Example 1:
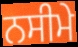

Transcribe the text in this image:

ਨਸੀਮੇ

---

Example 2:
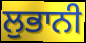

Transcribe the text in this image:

ਲੁਭਾਨੀ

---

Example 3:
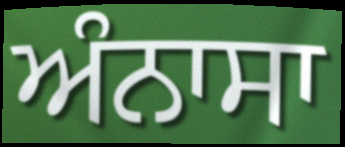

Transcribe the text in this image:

ਅੰਨਾਸਾ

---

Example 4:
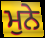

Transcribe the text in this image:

ਮੁਨੇ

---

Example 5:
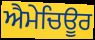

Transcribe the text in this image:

ਐਮੇਚਿਊਰ